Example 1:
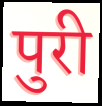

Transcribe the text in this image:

पुरी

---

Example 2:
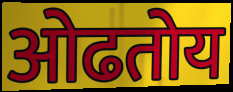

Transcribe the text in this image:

ओढतोय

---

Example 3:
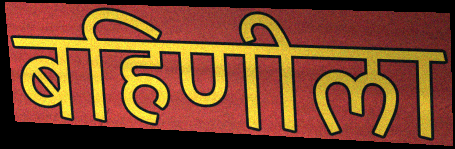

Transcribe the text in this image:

बहिणीला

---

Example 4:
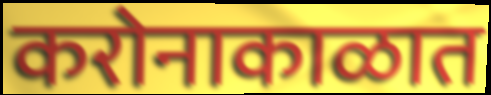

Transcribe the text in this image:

करोनाकाळात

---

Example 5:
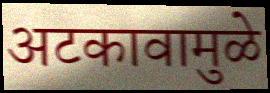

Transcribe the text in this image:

अटकावामुळे